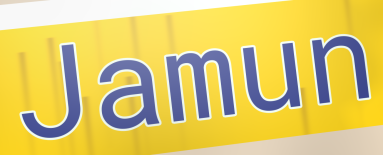
Jamun